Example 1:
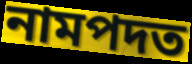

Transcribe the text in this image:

নামপদত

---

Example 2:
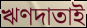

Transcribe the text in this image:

ঋণদাতাই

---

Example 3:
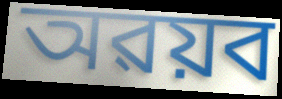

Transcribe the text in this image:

অৱয়ব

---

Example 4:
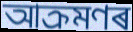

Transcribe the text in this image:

আক্ৰমণৰ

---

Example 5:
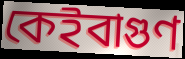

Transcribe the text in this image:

কেইবাগুণ